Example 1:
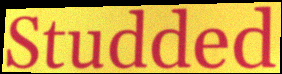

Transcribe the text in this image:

Studded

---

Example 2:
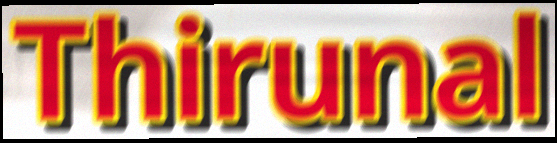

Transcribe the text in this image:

Thirunal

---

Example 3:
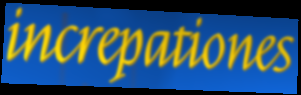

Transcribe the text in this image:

increpationes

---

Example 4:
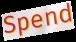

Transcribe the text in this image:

Spend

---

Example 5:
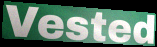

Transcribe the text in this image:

Vested